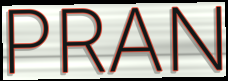
PRAN